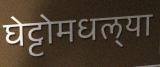
घेट्टोमधल्या